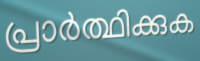
പ്രാർത്ഥിക്കുക